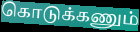
கொடுக்கணும்